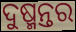
ଦୁଷ୍ମନ୍ତର